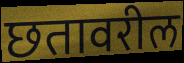
छतावरील